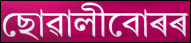
ছোৱালীবোৰৰ